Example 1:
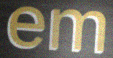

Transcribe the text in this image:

em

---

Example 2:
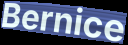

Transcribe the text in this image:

Bernice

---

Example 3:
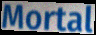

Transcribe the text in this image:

Mortal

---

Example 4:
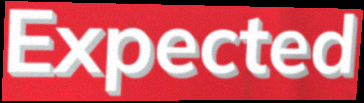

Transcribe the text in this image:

Expected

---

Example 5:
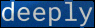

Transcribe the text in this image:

deeply